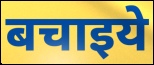
बचाइये